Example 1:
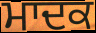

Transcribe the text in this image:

ਮਾਦਕ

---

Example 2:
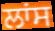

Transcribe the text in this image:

ਲਾਂਸ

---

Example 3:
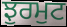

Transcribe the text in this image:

ਝੁਰਮੁਟ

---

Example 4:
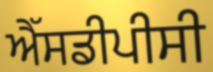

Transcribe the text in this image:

ਐੱਸਡੀਪੀਸੀ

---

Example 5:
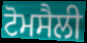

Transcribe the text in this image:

ਟੋਮਸੈਲੀ